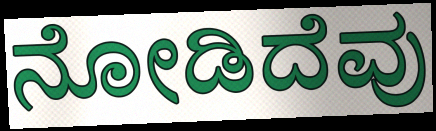
ನೋಡಿದೆವು